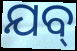
ଯବ୍